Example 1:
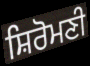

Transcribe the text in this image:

ਸ਼ਿਰੋਮਣੀ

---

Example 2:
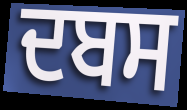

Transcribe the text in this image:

ਦਬਸ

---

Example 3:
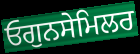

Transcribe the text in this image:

ਓਗੁਨਸੇਮਿਲਰ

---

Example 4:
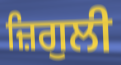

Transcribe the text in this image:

ਜ਼ਿਗੁਲੀ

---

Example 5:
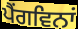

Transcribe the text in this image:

ਪੈਂਗਵਿਨਾਂ